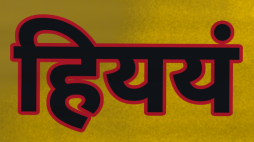
हिययं